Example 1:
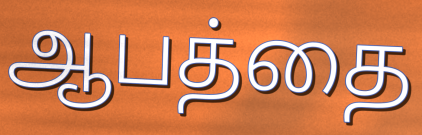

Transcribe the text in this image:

ஆபத்தை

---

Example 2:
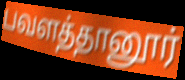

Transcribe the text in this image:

பவளத்தானூர்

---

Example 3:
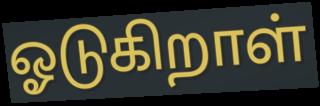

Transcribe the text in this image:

ஓடுகிறாள்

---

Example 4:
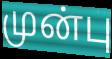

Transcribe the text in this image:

முன்பு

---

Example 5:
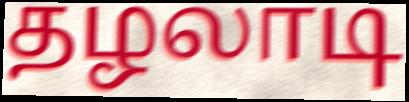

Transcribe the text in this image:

தழலாடி